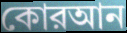
কোরআন